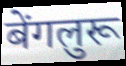
बेंगलुरू